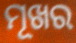
ମୂଖର